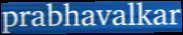
prabhavalkar